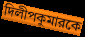
দিলীপকুমারকে